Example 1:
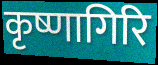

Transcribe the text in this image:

कृष्णागिरि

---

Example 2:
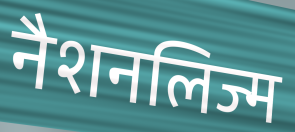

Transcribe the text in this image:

नैशनलिज्म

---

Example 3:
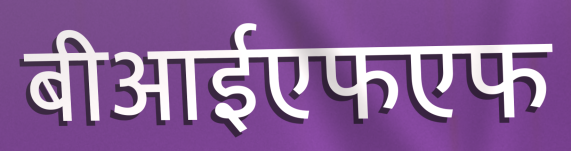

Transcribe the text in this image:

बीआईएफएफ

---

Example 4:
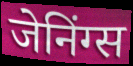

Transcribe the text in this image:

जेनिंग्स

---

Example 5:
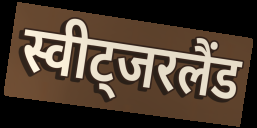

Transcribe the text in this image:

स्वीट्जरलैंड